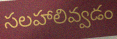
సలహాలివ్వడం